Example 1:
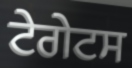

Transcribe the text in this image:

ਟੇਗੇਟਸ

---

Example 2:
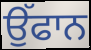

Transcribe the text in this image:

ਉੱਫਾਨ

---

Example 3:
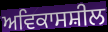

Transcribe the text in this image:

ਅਵਿਕਾਸਸ਼ੀਲ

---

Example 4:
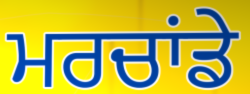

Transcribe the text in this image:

ਮਰਚਾਂਡੇ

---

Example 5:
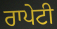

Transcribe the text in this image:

ਰਾਪੇਟੀ